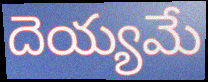
దెయ్యమే